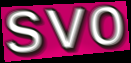
svo